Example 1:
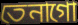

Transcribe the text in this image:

তেনাগো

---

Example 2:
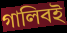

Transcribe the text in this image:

গালিবই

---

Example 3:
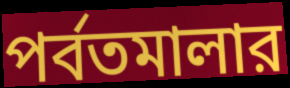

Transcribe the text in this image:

পর্বতমালার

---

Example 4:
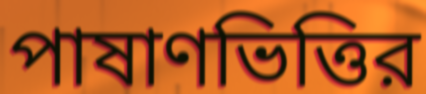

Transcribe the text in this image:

পাষাণভিত্তির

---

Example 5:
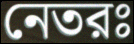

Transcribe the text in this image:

নেতরঃ